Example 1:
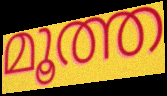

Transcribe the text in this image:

മൂത്ത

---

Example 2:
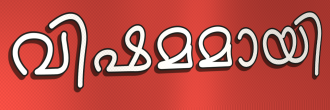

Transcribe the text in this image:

വിഷമമായി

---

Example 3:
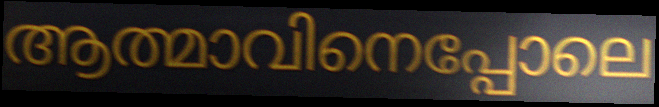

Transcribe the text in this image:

ആത്മാവിനെപ്പോലെ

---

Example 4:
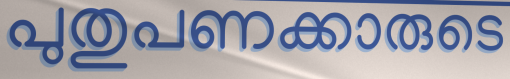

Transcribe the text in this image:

പുതുപണക്കാരുടെ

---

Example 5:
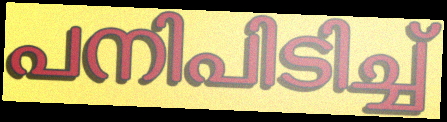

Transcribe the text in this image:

പനിപിടിച്ച്